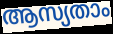
ആസ്യതാം